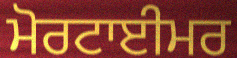
ਮੋਰਟਾਈਮਰ